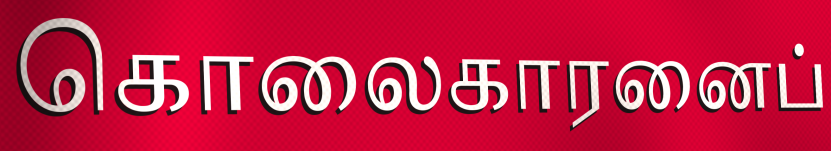
கொலைகாரனைப்